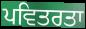
ਪਵਿਤਰਤਾ